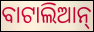
ବାଟାଲିଆନ୍